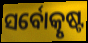
ସର୍ବୋତ୍କୃଷ୍ଟ